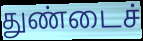
துண்டைச்